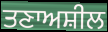
ਤਣਾਅਸ਼ੀਲ